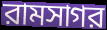
রামসাগর